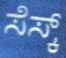
ಸೆಸ್ಕ್